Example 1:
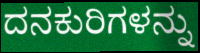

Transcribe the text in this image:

ದನಕುರಿಗಳನ್ನು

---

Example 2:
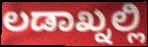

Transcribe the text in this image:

ಲಡಾಖ್ನಲ್ಲಿ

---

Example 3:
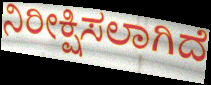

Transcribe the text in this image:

ನಿರೀಕ್ಷಿಸಲಾಗಿದೆ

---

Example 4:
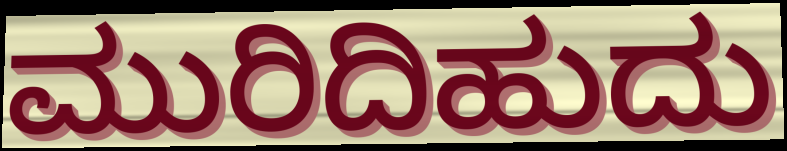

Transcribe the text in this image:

ಮುರಿದಿಹುದು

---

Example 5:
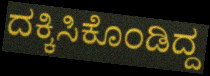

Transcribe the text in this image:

ದಕ್ಕಿಸಿಕೊಂಡಿದ್ದ